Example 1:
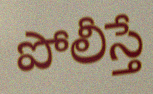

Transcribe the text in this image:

పోలీస్తే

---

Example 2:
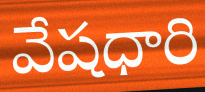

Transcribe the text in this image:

వేషధారి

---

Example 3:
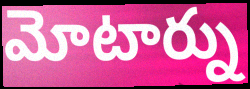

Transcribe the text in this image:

మోటార్ను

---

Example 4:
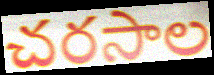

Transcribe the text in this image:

చరసాల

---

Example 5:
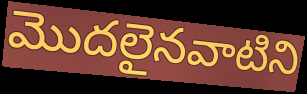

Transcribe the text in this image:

మొదలైనవాటిని